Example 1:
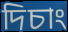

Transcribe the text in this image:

দিচাং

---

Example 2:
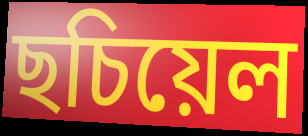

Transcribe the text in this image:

ছচিয়েল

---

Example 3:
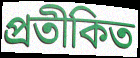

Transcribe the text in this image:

প্ৰতীকিত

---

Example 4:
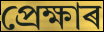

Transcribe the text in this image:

প্ৰেক্ষাৰ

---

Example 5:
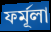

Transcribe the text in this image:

ফৰ্মূলা